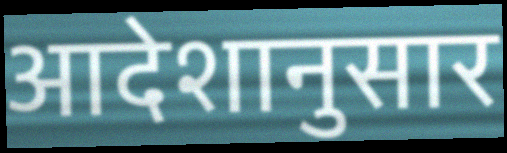
आदेशानुसार